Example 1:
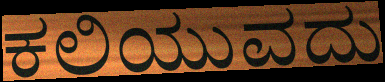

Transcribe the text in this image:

ಕಲಿಯುವದು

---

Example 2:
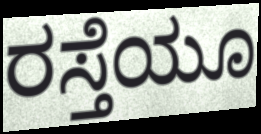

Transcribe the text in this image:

ರಸ್ತೆಯೂ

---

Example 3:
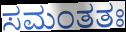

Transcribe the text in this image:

ಸಮಂತತಃ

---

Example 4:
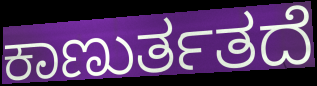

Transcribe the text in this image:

ಕಾಣುರ್ತತದೆ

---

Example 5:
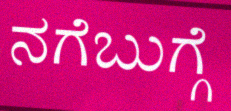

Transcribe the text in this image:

ನಗೆಬುಗ್ಗೆ